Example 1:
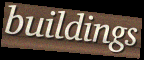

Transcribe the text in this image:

buildings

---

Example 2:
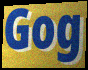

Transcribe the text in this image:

Gog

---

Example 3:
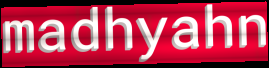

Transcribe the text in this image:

madhyahn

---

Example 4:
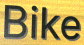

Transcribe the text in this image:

Bike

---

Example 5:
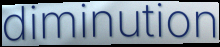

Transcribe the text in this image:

diminution